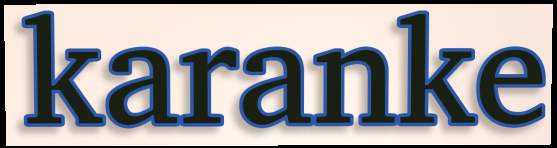
karanke